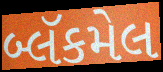
બ્લૅકમેલ